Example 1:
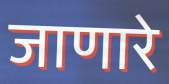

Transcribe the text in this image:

जाणारे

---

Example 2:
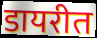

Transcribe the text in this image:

डायरीत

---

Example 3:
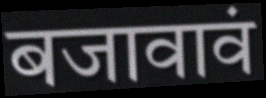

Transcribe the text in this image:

बजावावं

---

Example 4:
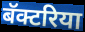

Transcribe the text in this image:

बॅक्टरिया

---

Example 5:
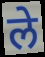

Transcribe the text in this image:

ले